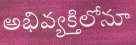
అభివ్యక్తిలోనూ